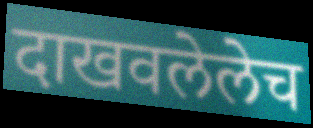
दाखवलेलेच